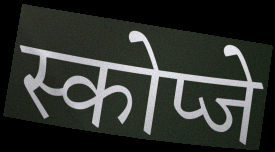
स्कोप्जे